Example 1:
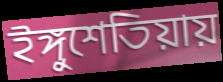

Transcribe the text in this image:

ইঙ্গুশেতিয়ায়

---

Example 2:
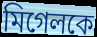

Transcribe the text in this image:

মিগেলকে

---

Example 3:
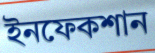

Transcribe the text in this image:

ইনফেকশান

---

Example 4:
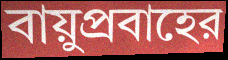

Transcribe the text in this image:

বায়ুপ্রবাহের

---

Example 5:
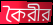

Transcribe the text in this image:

কৈরীর